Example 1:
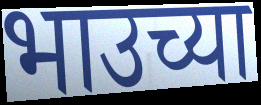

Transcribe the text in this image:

भाउच्या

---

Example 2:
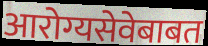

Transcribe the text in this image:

आरोग्यसेवेबाबत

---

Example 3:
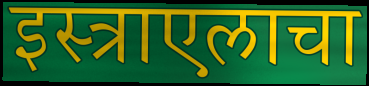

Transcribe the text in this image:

इस्त्राएलाचा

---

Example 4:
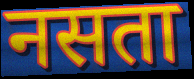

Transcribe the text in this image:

नसता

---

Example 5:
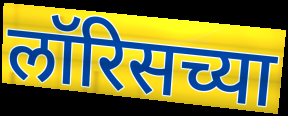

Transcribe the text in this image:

लॉरिसच्या